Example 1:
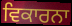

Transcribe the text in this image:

ਵਿਕਾਰਨਾ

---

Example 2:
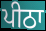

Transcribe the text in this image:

ਪੀਠਾ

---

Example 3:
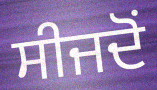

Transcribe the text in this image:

ਸੀਜਦੋਂ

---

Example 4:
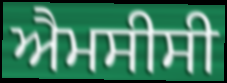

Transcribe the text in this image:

ਐਮਸੀਸੀ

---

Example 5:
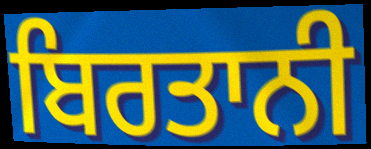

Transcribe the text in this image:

ਬਿਰਤਾਨੀ